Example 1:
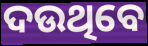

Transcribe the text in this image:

ଦଉଥିବେ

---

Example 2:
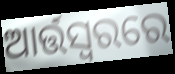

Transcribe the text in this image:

ଆର୍ତ୍ତସ୍ଵରରେ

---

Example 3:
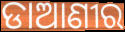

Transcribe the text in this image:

ଡାଆଣୀର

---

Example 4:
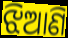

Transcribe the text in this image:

ଝିଆଣି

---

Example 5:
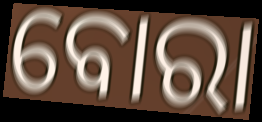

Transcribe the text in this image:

ବୋରା